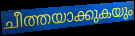
ചീത്തയാക്കുകയും